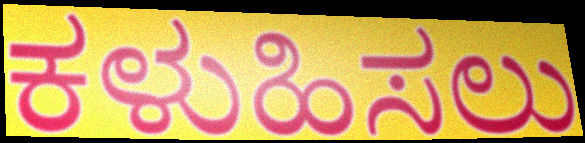
ಕಳುಹಿಸಲು